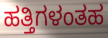
ಹತ್ತಿಗಳಂತಹ